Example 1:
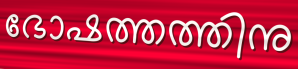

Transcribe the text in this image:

ഭോഷത്തത്തിനു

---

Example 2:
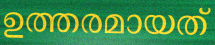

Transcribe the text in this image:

ഉത്തരമായത്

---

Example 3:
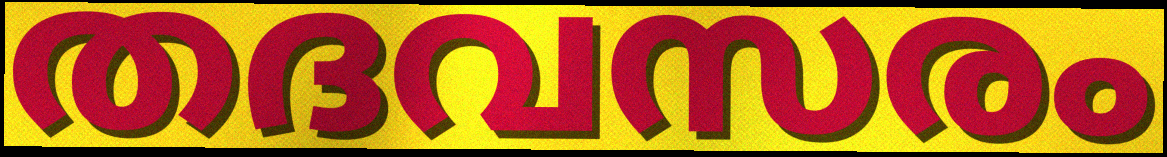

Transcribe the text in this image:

തദവസരം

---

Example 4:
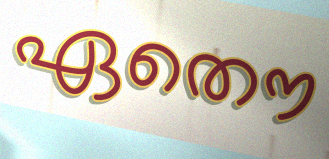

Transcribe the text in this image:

ഏതൌ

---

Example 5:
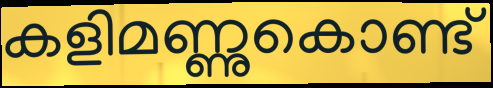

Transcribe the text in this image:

കളിമണ്ണുകൊണ്ട്